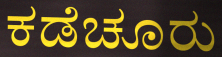
ಕಡೆಚೂರು